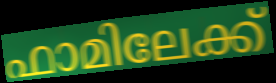
ഫാമിലേക്ക്